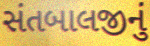
સંતબાલજીનું